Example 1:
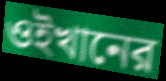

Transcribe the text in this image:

ওইখানের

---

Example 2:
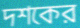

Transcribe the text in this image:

দশকের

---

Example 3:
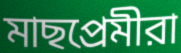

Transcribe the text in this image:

মাছপ্রেমীরা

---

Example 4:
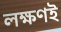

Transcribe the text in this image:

লক্ষণই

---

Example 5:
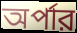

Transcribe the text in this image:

অর্পার